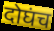
दोघंच